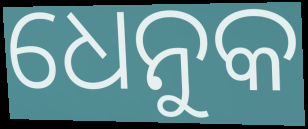
ଧେନୁକ